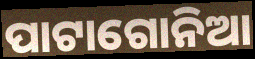
ପାଟାଗୋନିଆ